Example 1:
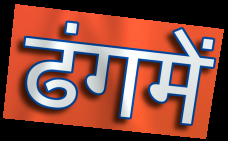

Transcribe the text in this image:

ढंगमें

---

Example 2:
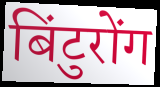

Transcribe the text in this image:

बिंटुरोंग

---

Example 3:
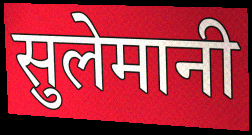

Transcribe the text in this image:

सुलेमानी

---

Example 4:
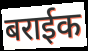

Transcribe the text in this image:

बराईक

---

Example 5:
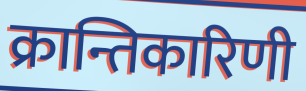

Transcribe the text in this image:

क्रान्तिकारिणी